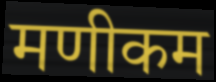
मणीकम